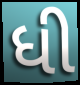
ધી